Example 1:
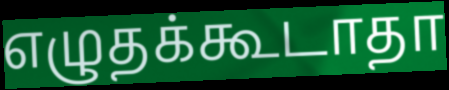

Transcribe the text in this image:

எழுதக்கூடாதா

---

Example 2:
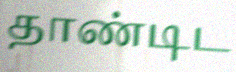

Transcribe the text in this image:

தாண்டிட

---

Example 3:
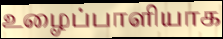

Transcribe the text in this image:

உழைப்பாளியாக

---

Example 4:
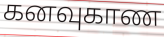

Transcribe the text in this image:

கனவுகாண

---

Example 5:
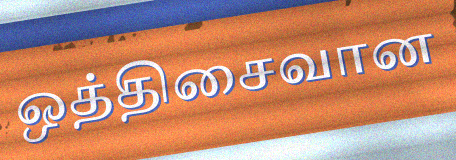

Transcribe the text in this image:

ஒத்திசைவான